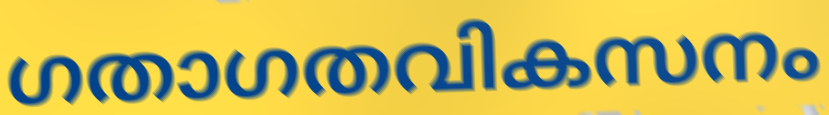
ഗതാഗതവികസനം